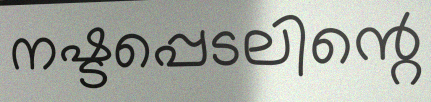
നഷ്ടപ്പെടലിന്റെ